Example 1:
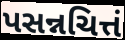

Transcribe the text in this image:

પસન્નચિત્તં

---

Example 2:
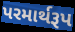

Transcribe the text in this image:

પરમાર્થરૂપ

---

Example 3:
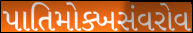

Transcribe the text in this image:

પાતિમોક્ખસંવરોવ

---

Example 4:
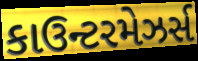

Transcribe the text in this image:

કાઉન્ટરમેઝર્સ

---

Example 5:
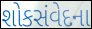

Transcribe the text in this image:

શોકસંવેદના